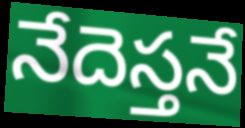
నేదెస్తనే